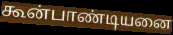
கூன்பாண்டியனை